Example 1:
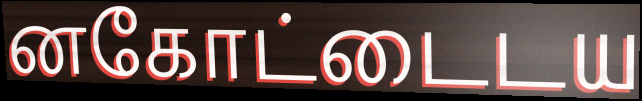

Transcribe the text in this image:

னகோட்டைடய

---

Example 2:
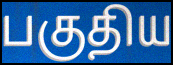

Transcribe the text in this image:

பகுதிய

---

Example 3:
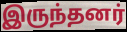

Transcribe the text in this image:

இருந்தனர்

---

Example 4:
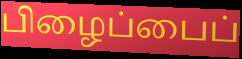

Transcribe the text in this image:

பிழைப்பைப்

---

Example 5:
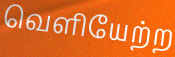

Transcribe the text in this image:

வெளியேற்ற